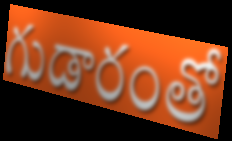
గుడారంతో